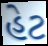
હેટ